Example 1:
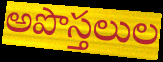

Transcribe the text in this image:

అపొస్తలుల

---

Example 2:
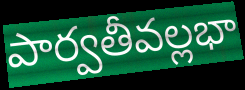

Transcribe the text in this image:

పార్వతీవల్లభా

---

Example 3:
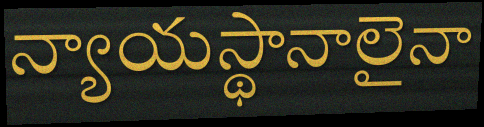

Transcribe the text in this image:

న్యాయస్థానాలైనా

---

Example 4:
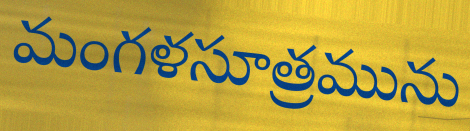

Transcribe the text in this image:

మంగళసూత్రమును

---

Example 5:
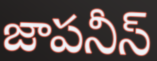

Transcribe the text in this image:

జాపనీస్